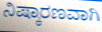
ನಿಷ್ಕಾರಣವಾಗಿ